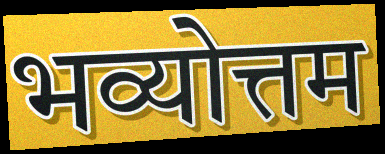
भव्योत्तम